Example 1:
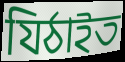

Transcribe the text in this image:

যিঠাইত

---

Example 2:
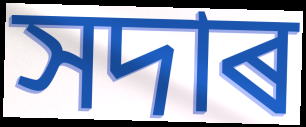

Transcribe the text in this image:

সদাৰ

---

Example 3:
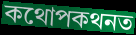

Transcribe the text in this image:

কথোপকথনত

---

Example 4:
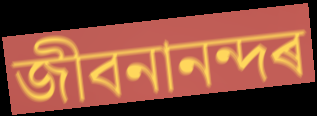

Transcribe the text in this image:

জীবনানন্দৰ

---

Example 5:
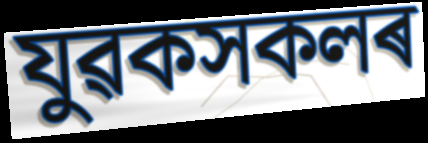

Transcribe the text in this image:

যুৱকসকলৰ